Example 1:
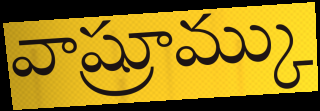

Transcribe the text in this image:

వాష్రూమ్కు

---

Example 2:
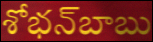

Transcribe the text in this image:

శోభన్‌బాబు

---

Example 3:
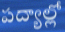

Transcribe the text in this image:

పద్యాల్లో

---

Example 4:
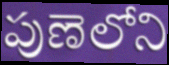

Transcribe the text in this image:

పుణెలోని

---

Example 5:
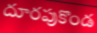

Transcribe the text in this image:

దూరపుకొండ